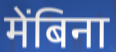
मेंबिना